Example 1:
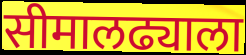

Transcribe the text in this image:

सीमालढ्याला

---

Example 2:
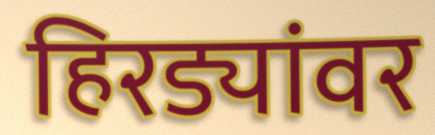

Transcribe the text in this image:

हिरड्यांवर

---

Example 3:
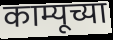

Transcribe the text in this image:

काम्यूच्या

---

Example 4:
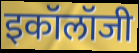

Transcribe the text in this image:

इकॉलॉजी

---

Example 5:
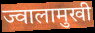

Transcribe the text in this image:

ज्वालामुखी